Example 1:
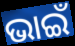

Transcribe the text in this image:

ଭାଇଁ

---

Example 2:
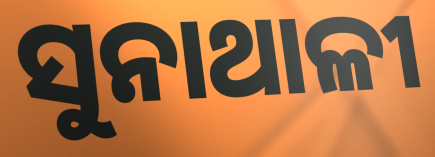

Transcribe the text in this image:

ସୁନାଥାଳୀ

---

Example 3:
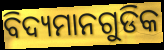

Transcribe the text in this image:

ବିଦ୍ୟମାନଗୁଡିକ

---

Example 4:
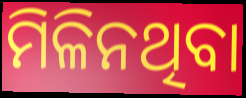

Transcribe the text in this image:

ମିଳିନଥିବା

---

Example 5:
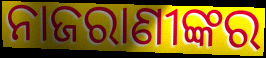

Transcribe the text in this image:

ନାଜରାଣୀଙ୍କର